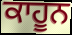
ਕਾਹੂਨ